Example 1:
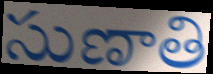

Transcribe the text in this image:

సుణాతి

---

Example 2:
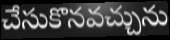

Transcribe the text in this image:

చేసుకొనవచ్చును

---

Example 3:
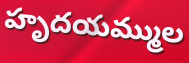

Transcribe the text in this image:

హృదయమ్ముల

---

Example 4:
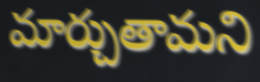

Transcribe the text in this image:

మార్చుతామని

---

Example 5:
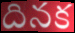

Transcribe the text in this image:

దినక